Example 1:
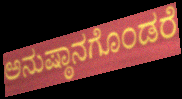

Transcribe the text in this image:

ಅನುಷ್ಠಾನಗೊಂಡರೆ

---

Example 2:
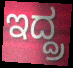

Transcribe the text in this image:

ಇದ್ದ್ರ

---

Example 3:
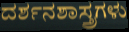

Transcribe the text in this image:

ದರ್ಶನಶಾಸ್ತ್ರಗಳು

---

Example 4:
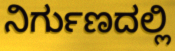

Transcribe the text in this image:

ನಿರ್ಗುಣದಲ್ಲಿ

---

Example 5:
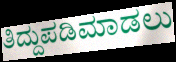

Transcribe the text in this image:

ತಿದ್ದುಪಡಿಮಾಡಲು